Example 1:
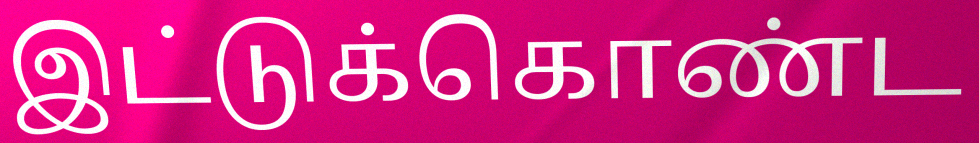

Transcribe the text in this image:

இட்டுக்கொண்ட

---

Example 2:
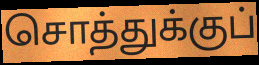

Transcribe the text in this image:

சொத்துக்குப்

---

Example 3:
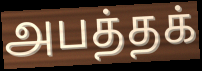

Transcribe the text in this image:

அபத்தக்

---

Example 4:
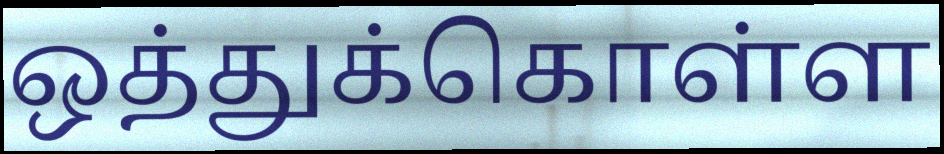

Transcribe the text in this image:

ஒத்துக்கொள்ள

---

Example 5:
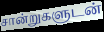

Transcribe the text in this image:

சான்றுகளுடன்